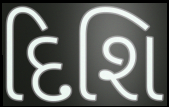
દિશિ